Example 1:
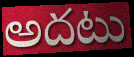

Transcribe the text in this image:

అదటు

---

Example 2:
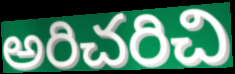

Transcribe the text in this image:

అరిచరిచి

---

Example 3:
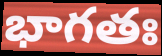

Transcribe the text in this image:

భాగతః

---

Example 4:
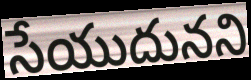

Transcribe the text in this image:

సేయుదునని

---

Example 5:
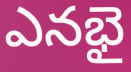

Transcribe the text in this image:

ఎనభై